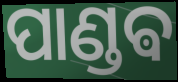
ପାଣ୍ଡଵ